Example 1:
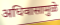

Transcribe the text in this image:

अधिवासामुळे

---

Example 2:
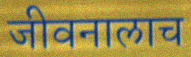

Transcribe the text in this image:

जीवनालाच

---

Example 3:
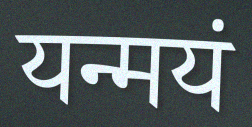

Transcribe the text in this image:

यन्मयं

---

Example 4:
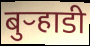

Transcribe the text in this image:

बुऱ्हाडी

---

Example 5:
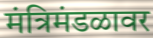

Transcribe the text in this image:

मंत्रिमंडळावर